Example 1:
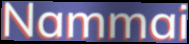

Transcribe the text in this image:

Nammai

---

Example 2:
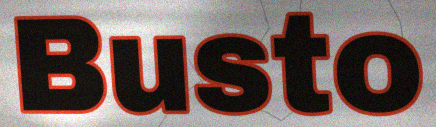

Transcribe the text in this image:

Busto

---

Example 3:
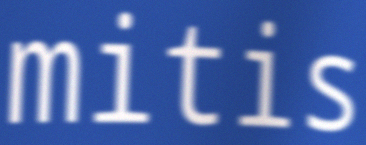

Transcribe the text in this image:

mitis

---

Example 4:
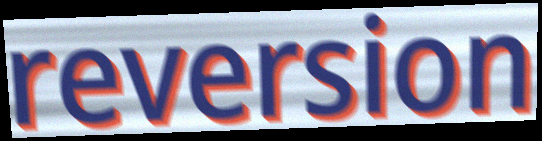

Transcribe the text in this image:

reversion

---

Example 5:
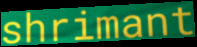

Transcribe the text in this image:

shrimant